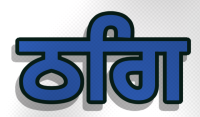
ਠਗਿ